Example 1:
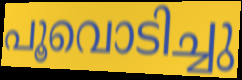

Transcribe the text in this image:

പൂവൊടിച്ചു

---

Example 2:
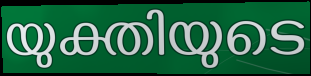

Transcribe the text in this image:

യുക്തിയുടെ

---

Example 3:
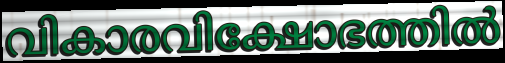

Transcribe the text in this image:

വികാരവിക്ഷോഭത്തിൽ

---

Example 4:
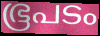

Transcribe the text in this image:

ഭൂപടം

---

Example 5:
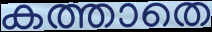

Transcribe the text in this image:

കത്താതെ